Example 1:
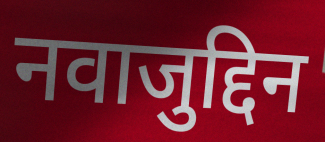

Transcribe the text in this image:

नवाजुद्दिन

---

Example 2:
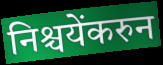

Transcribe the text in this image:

निश्चयेंकरुन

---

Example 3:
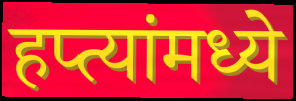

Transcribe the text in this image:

हप्त्यांमध्ये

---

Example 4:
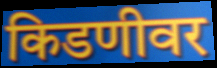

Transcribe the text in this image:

किडणीवर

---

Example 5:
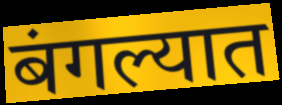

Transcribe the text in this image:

बंगल्यात